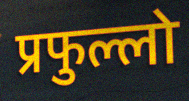
प्रफुल्लो